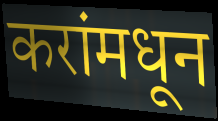
करांमधून